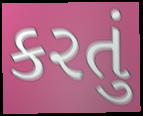
કરતું